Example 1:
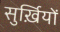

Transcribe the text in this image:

सुर्ख़ियों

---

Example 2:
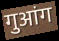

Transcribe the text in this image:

गुआंग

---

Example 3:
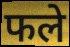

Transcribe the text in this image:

फले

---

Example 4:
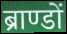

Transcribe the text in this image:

ब्राण्डों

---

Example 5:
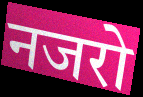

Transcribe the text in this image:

नजरो